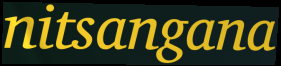
nitsangana